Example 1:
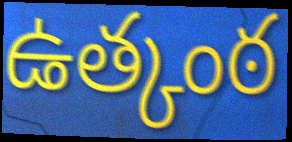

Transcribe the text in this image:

ఉత్కంఠ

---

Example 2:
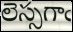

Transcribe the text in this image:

లెస్సగాఁ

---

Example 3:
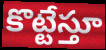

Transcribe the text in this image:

కొట్టేస్తూ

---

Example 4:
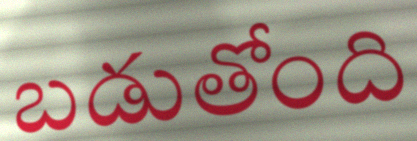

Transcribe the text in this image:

బడుతోంది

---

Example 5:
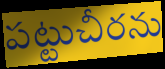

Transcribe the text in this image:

పట్టుచీరను